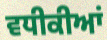
ਵਧੀਕੀਆਂ